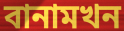
বানামখন